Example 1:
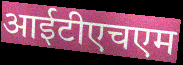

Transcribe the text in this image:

आईटीएचएम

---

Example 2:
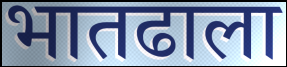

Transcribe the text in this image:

भातढाला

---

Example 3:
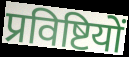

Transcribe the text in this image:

प्रविष्टियों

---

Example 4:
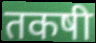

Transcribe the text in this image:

तकषी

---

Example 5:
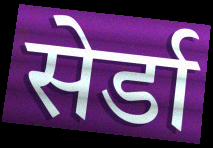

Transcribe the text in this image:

सेर्डा